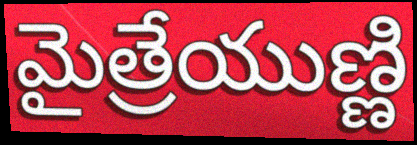
మైత్రేయుణ్ణి